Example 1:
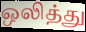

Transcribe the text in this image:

ஒலித்து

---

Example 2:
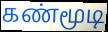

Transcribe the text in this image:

கண்மூடி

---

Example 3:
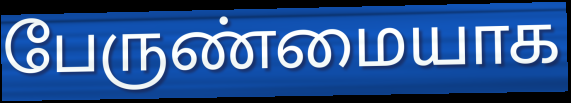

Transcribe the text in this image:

பேருண்மையாக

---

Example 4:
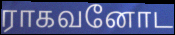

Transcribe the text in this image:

ராகவனோட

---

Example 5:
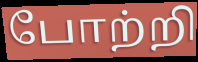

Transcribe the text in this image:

போற்றி